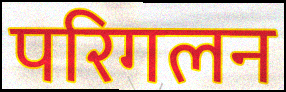
परिगलन